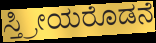
ಸ್ತ್ರೀಯರೊಡನೆ